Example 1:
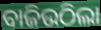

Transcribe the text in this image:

ବାଜିଉଠିଲା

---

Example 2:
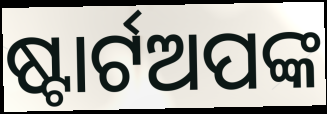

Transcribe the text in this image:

ଷ୍ଟାର୍ଟଅପଙ୍କ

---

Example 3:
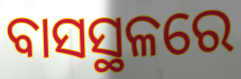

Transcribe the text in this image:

ବାସସ୍ଥଳରେ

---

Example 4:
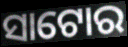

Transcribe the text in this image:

ସାଟୋର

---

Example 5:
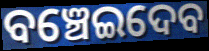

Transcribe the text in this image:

ବଞ୍ଚେଇଦେବ